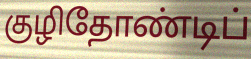
குழிதோண்டிப்